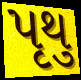
પૃથુ